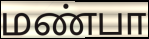
மண்பா